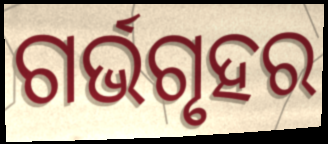
ଗର୍ଭଗୃହର